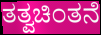
ತತ್ವಚಿಂತನೆ